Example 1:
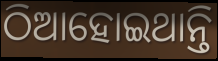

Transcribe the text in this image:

ଠିଆହୋଇଥାନ୍ତି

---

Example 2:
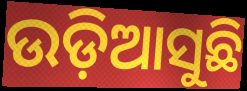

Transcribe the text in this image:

ଉଡ଼ିଆସୁଛି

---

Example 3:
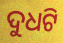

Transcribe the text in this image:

ଦୁଧଟି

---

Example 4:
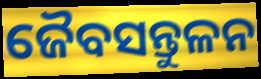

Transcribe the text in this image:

ଜୈବସନ୍ତୁଳନ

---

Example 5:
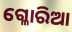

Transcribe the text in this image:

ଗ୍ଳୋରିଆ